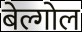
बेल्गोल